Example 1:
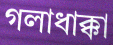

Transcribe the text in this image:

গলাধাক্কা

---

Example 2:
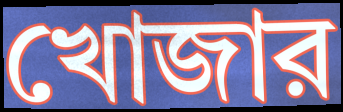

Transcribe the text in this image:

খোজার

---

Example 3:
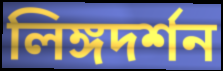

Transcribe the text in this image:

লিঙ্গদর্শন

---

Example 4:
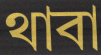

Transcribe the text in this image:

থাবা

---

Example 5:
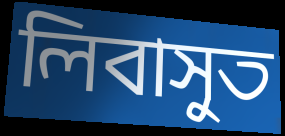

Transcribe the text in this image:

লিবাসুত